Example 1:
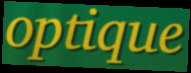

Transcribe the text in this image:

optique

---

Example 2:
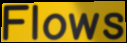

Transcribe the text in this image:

Flows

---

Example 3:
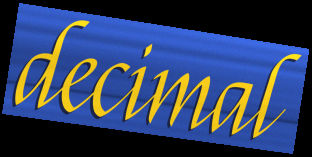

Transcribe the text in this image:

decimal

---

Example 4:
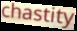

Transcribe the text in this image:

chastity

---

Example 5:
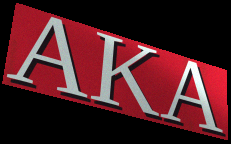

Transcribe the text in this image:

AKA